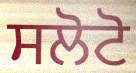
ਸਲੋਟੋ